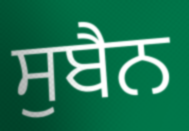
ਸੁਬੈਨ